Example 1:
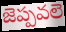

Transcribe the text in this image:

జెప్పవలె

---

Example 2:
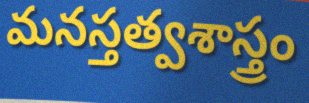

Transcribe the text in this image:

మనస్తత్వశాస్త్రం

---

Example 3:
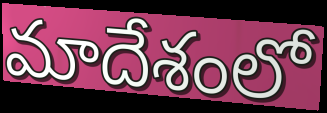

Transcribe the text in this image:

మాదేశంలో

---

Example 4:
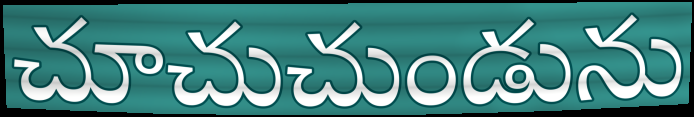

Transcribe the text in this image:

చూచుచుండును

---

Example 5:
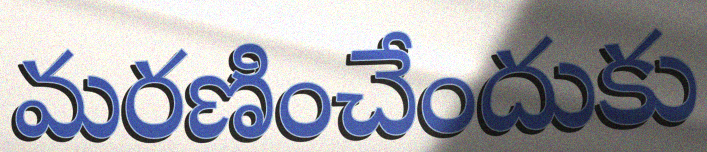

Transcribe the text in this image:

మరణించేందుకు